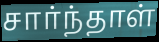
சார்ந்தாள்